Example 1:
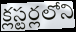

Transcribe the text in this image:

క్లస్టర్లలోని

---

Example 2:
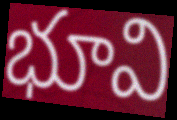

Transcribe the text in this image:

భూవి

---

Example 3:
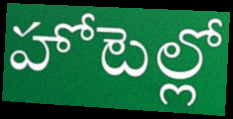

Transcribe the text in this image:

హోటెల్లో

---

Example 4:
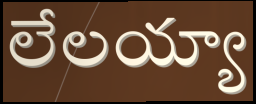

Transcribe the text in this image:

లేలయ్యా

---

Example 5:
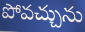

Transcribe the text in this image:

పోవచ్చును